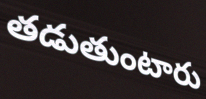
తడుతుంటారు